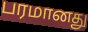
பரமானது